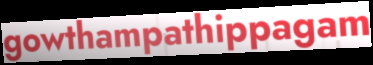
gowthampathippagam